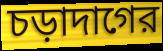
চড়াদাগের